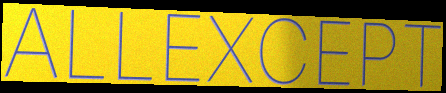
ALLEXCEPT